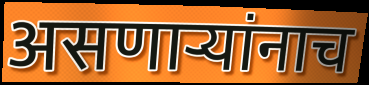
असणार्‍यांनाच